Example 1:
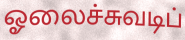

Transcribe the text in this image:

ஓலைச்சுவடிப்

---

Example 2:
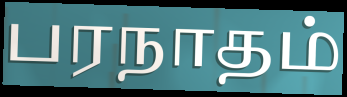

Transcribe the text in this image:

பரநாதம்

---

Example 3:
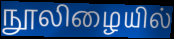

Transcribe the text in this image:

நூலிழையில்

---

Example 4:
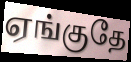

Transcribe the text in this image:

ஏங்குதே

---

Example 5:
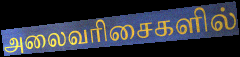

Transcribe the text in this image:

அலைவரிசைகளில்